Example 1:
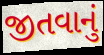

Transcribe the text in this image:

જીતવાનું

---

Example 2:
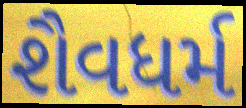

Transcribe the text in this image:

શૈવધર્મ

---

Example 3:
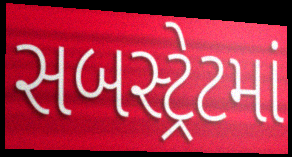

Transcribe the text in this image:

સબસ્ટ્રેટમાં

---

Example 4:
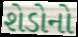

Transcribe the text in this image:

શેડોનો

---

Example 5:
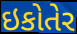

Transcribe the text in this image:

ઇકોતેર